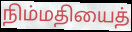
நிம்மதியைத்